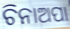
ଚିନାଅପା